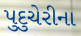
પુદુચેરીના